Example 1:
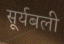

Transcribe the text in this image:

सूर्यबली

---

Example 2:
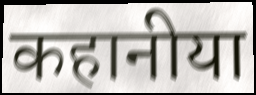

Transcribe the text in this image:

कहानीया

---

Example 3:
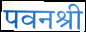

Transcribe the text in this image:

पवनश्री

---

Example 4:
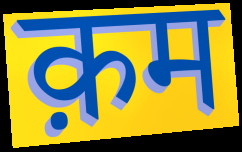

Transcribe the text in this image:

क़म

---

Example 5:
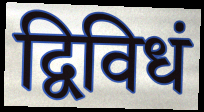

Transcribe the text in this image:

द्विविधं